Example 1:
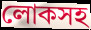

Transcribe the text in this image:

লোকসহ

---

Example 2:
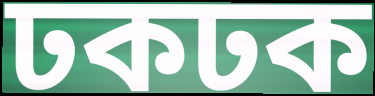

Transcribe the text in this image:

ঢকঢক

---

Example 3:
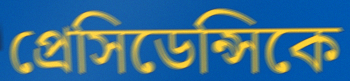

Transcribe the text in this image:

প্রেসিডেন্সিকে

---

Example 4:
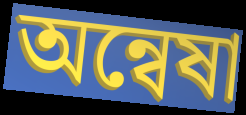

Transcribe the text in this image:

অন্বেষা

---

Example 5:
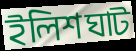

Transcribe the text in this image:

ইলিশঘাট